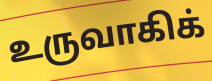
உருவாகிக்